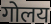
गोलय